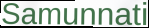
Samunnati